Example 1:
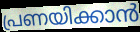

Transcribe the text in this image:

പ്രണയിക്കാൻ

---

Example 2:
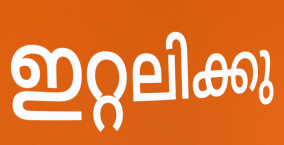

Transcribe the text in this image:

ഇറ്റലിക്കു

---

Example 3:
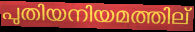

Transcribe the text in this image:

പുതിയനിയമത്തില്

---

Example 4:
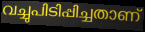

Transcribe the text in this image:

വച്ചുപിടിപ്പിച്ചതാണ്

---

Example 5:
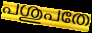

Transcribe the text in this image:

പശുപതേ